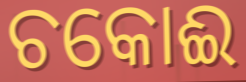
ଚକୋଈ